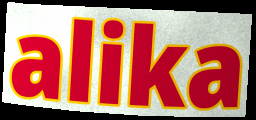
alika